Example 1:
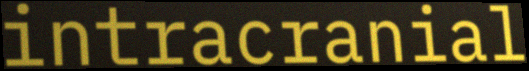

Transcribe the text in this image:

intracranial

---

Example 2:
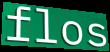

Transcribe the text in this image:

flos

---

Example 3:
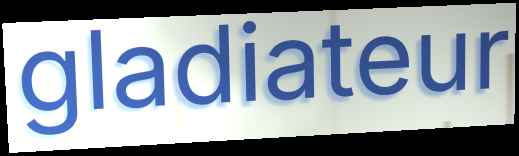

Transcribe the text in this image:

gladiateur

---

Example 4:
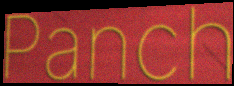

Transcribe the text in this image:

Panch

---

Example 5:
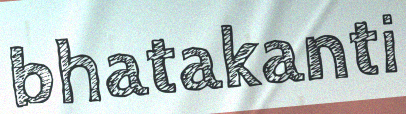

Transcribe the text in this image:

bhatakanti